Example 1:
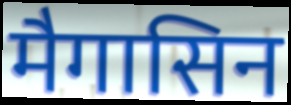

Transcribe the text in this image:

मैगासिन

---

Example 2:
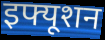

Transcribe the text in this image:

इफ्यूशन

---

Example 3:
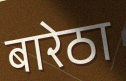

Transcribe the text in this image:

बारेठा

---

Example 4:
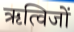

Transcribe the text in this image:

ऋत्विजों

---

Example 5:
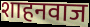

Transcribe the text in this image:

शाहनवाज